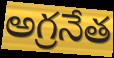
అగ్రనేత